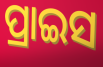
ପ୍ରାଇସ